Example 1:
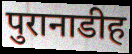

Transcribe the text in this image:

पुरानाडीह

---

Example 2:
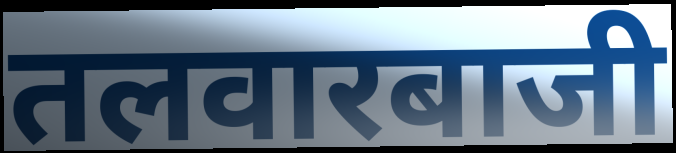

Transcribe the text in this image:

तलवारबाजी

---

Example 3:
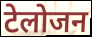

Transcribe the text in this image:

टेलोजन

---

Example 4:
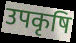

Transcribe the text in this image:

उपकृषि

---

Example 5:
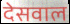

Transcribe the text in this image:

देसवाल